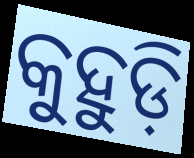
କୁହୁଡ଼ି